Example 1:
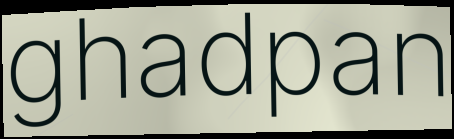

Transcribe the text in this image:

ghadpan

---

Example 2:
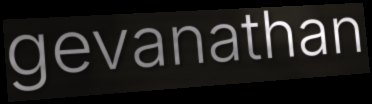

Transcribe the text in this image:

gevanathan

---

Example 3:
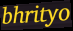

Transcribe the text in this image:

bhrityo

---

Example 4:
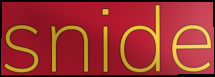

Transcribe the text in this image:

snide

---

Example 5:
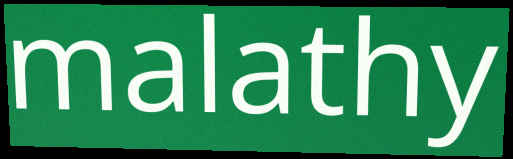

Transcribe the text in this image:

malathy